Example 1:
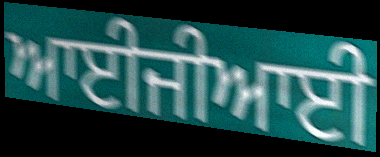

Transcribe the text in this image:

ਆਈਜੀਆਈ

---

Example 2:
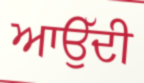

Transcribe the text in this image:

ਆਉੱਦੀ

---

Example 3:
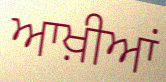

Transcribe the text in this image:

ਆਖ਼ੀਆਂ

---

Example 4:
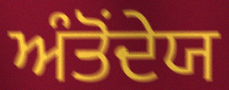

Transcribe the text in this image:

ਅੰਤੋਂਦੇਯ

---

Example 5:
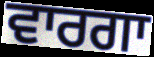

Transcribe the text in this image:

ਵਾਰਗਾ